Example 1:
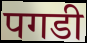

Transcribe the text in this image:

पगडी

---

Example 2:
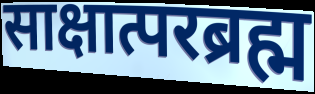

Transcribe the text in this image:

साक्षात्परब्रह्म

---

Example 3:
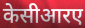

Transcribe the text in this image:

केसीआरए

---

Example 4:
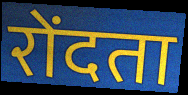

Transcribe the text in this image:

रोंदता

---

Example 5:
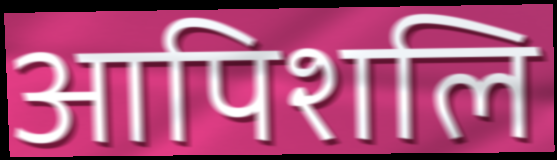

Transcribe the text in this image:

आपिशलि